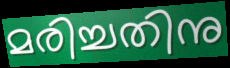
മരിച്ചതിനു